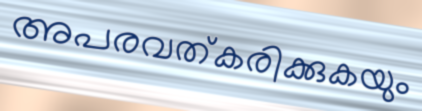
അപരവത്കരിക്കുകയും